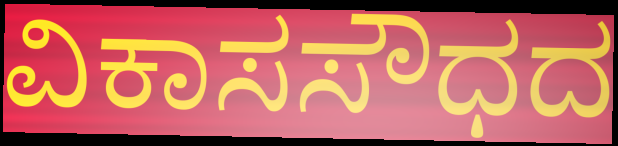
ವಿಕಾಸಸೌಧದ